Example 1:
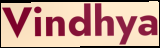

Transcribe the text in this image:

Vindhya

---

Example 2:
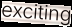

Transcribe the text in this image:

exciting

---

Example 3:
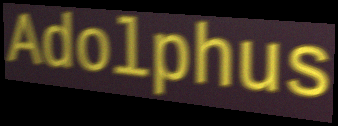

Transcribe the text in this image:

Adolphus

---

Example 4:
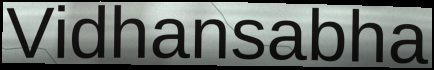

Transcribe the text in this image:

Vidhansabha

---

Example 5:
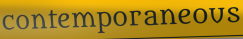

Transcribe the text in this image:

contemporaneous